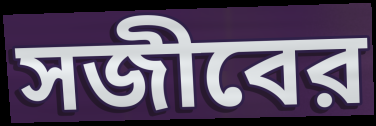
সজীবের